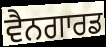
ਵੈਨਗਾਰਡ